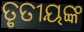
ତୃତୀୟଙ୍କ